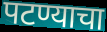
पटण्याचा